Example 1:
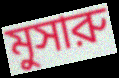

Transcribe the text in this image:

মুসারু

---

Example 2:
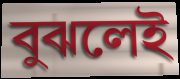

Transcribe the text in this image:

বুঝলেই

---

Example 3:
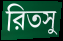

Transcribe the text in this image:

রিতসু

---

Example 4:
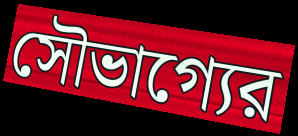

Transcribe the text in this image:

সৌভাগ্যের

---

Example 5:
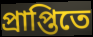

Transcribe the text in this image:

প্রাপ্তিতে